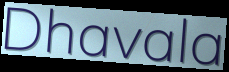
Dhavala